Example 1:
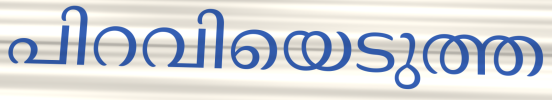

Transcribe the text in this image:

പിറവിയെടുത്ത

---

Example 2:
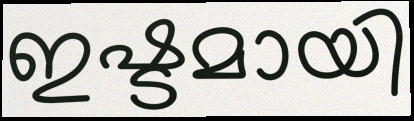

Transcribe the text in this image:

ഇഷ്ടമായി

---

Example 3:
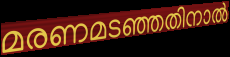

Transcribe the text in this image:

മരണമടഞ്ഞതിനാൽ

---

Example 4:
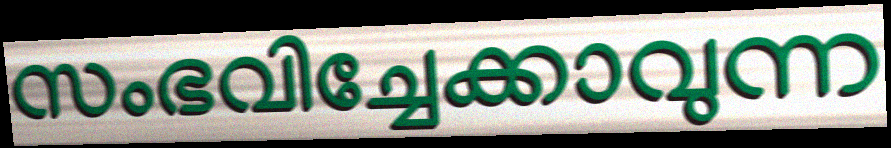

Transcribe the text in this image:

സംഭവിച്ചേക്കാവുന്ന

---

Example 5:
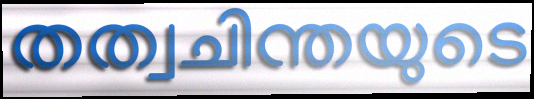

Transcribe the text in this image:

തത്വചിന്തയുടെ